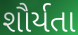
શૌર્યતા